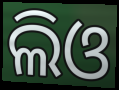
ଲିଓ